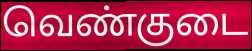
வெண்குடை